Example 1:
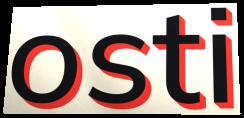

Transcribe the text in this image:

osti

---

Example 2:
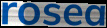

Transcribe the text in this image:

rosea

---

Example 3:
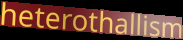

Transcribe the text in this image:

heterothallism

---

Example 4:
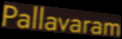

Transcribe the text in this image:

Pallavaram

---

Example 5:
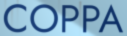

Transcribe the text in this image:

COPPA